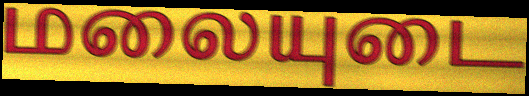
மலையுடை